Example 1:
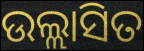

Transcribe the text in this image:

ଉଲ୍ଲାସିତ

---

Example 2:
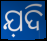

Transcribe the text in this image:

ଯ଼ଦି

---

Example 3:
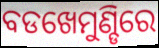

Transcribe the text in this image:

ବଡଖେମୁଣ୍ଡିରେ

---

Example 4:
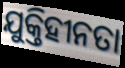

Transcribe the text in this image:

ଯୁକ୍ତିହୀନତା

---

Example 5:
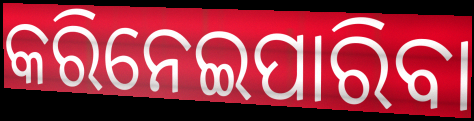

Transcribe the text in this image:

କରିନେଇପାରିବା